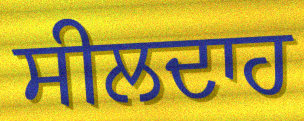
ਸੀਲਦਾਹ